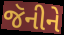
જૅનીને